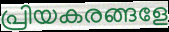
പ്രിയകരങ്ങളേ